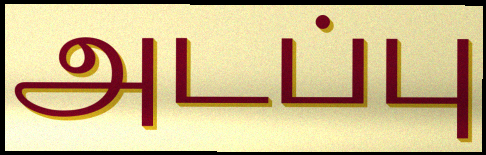
அடப்பு